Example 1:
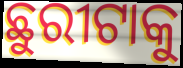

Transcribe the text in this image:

ଛୁରୀଟାକୁ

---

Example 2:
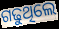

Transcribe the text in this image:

ଗଢୁଥିଲେ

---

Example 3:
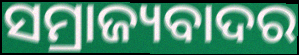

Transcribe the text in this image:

ସମ୍ରାଜ୍ୟବାଦର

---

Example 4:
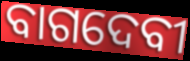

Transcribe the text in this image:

ବାଗଦେବୀ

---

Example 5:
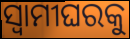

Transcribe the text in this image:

ସ୍ୱାମୀଘରକୁ